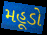
મહૂડો